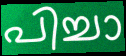
പിച്ചാ